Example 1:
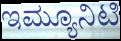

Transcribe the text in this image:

ಇಮ್ಯೂನಿಟಿ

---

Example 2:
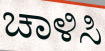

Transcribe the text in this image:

ಚಾಳಿಸಿ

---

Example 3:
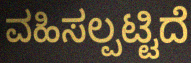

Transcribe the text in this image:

ವಹಿಸಲ್ಪಟ್ಟಿದೆ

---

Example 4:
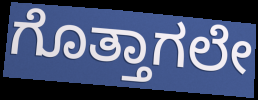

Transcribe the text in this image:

ಗೊತ್ತಾಗಲೇ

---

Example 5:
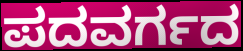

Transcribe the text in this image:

ಪದವರ್ಗದ